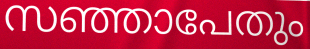
സഞ്ഞാപേതും